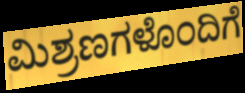
ಮಿಶ್ರಣಗಳೊಂದಿಗೆ